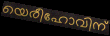
യെരീഹോവിന്